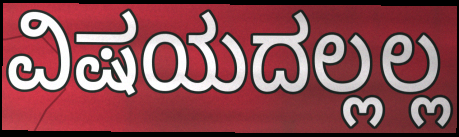
ವಿಷಯದಲ್ಲಲ್ಲ